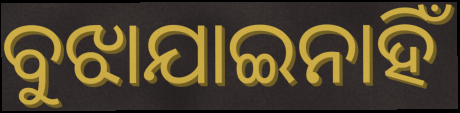
ବୁଝାଯାଇନାହିଁ